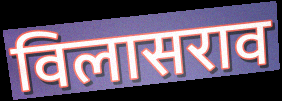
विलासराव